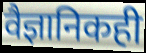
वैज्ञानिकही